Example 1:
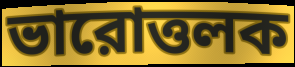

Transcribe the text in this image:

ভারোত্তলক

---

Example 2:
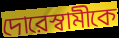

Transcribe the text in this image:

দোরেস্বামীকে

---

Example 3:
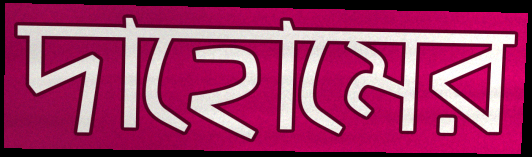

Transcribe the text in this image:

দাহোমের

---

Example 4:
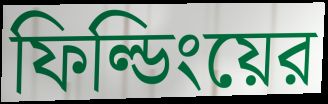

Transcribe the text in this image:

ফিল্ডিংয়ের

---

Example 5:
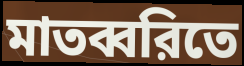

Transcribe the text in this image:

মাতব্বরিতে